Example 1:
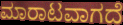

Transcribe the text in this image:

ಮಾರಾಟವಾಗದೆ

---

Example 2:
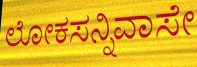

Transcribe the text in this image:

ಲೋಕಸನ್ನಿವಾಸೇ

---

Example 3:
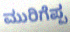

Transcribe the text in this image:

ಮುರಿಗೆಪ್ಪ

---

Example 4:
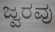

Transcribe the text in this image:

ಜ್ವರವು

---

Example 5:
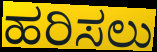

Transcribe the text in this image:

ಹರಿಸಲು